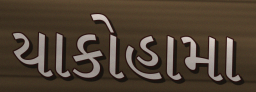
યાકોહામા